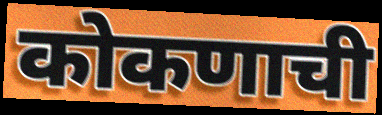
कोकणाची